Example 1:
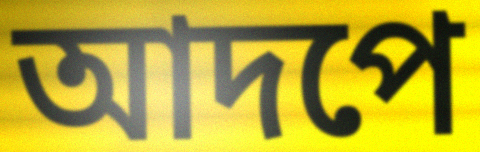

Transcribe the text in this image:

আদপে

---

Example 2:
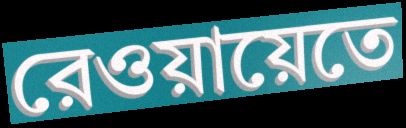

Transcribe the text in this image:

রেওয়ায়েতে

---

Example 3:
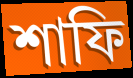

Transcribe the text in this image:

শাফি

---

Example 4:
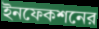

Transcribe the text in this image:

ইনফেকশনের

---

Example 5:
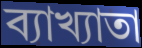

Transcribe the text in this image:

ব্যাখ্যাতা